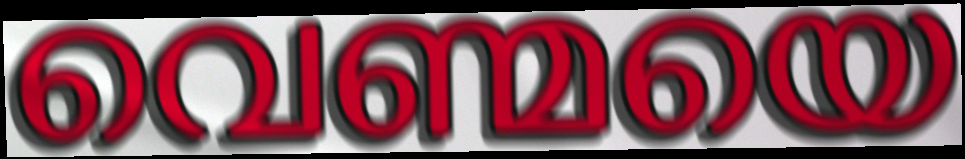
വെണ്മയെ